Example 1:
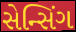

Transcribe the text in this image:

સેન્સિંગ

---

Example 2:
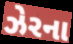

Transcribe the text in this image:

ઝેરના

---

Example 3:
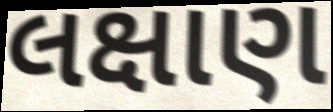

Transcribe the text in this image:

લક્ષાણ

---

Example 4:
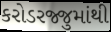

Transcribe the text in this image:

કરોડરજ્જુમાંથી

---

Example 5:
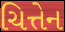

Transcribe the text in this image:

ચિત્તેન